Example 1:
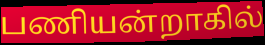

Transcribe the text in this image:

பணியன்றாகில்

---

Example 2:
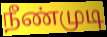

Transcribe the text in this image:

நீண்முடி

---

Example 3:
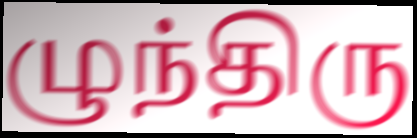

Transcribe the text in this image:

ழுந்திரு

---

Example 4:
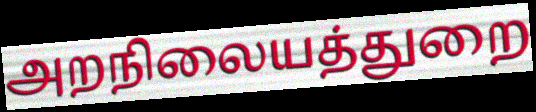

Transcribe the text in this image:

அறநிலையத்துறை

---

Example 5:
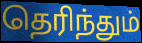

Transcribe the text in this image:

தெரிந்தும்